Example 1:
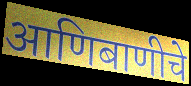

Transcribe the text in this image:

आणिबाणीचे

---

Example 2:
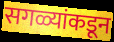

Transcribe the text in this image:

सगळ्यांकडून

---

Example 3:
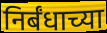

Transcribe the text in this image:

निर्बंधाच्या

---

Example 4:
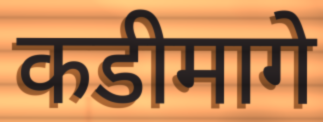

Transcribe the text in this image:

कडीमागे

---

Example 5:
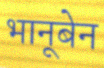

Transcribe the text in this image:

भानूबेन